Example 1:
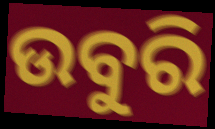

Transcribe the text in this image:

ଉବୁରି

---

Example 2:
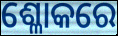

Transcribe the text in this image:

ଶ୍ଳୋକରେ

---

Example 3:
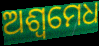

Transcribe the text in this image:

ଅଶ୍ଵମେଧ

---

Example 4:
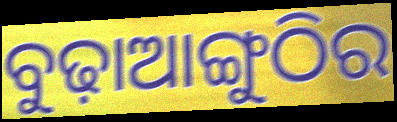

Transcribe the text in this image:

ବୁଢ଼ାଆଙ୍ଗୁଠିର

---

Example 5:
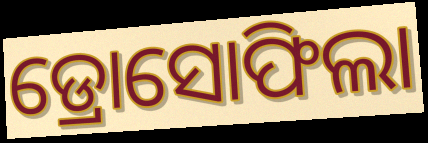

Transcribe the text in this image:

ଡ୍ରୋସୋଫିଲା